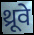
थ्रूवे